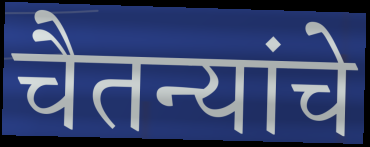
चैतन्यांचे